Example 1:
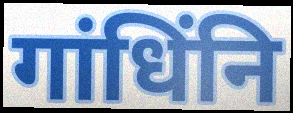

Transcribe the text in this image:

गांधिंनि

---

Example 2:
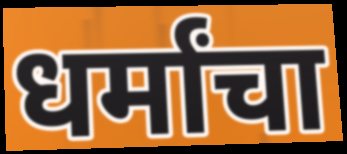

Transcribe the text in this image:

धर्मांचा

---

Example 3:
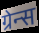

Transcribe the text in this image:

ग्रेन्स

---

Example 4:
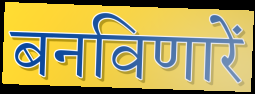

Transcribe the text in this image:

बनविणारें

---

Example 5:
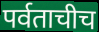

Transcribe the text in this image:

पर्वताचीच